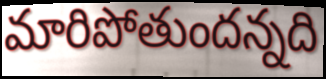
మారిపోతుందన్నది